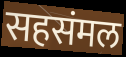
सहसंमल